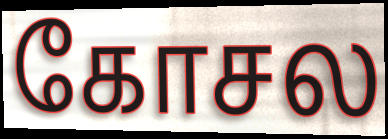
கோசல